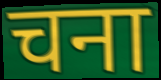
चना